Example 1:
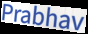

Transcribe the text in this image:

Prabhav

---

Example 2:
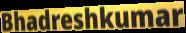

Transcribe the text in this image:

Bhadreshkumar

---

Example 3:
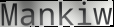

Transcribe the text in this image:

Mankiw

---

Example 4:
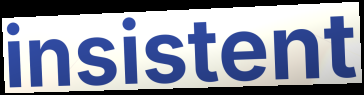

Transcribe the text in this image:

insistent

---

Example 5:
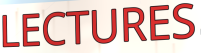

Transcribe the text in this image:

LECTURES